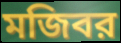
মজিবর